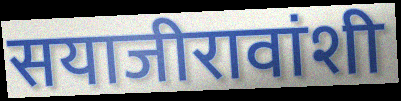
सयाजीरावांशी